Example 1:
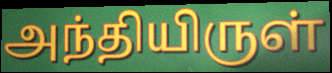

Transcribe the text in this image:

அந்தியிருள்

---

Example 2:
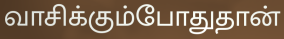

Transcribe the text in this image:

வாசிக்கும்போதுதான்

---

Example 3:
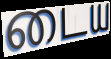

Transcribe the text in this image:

டைய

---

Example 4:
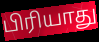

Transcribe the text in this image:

பிரியாது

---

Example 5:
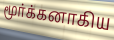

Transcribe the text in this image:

மூர்க்கனாகிய